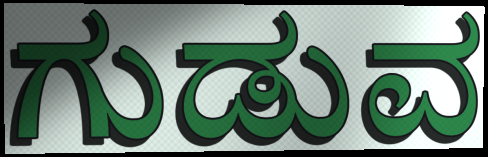
ಗುಡುವ